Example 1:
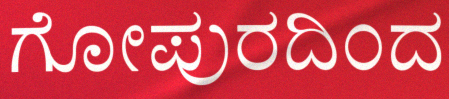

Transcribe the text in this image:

ಗೋಪುರದಿಂದ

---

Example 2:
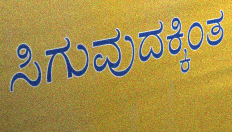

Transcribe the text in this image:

ಸಿಗುವುದಕ್ಕಿಂತ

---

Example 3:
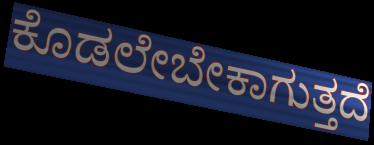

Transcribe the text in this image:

ಕೊಡಲೇಬೇಕಾಗುತ್ತದೆ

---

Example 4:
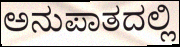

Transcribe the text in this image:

ಅನುಪಾತದಲ್ಲಿ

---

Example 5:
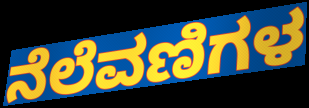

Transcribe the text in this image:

ನೆಲೆವಣಿಗಳ